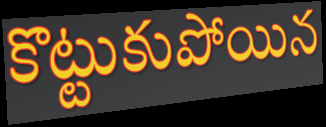
కొట్టుకుపోయిన